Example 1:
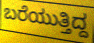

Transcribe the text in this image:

ಬರೆಯುತ್ತಿದ್ದ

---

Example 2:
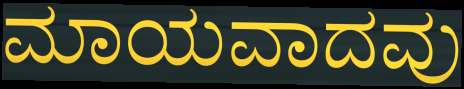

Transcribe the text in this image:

ಮಾಯವಾದವು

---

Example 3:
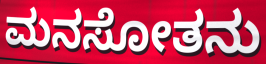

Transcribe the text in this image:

ಮನಸೋತನು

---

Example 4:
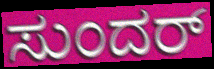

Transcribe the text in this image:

ಸುಂದರ್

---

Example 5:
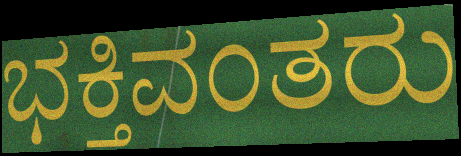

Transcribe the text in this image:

ಭಕ್ತಿವಂತರು